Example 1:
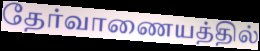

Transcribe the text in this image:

தேர்வாணையத்தில்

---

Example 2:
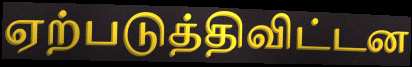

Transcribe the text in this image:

ஏற்படுத்திவிட்டன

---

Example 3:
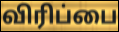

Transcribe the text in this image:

விரிப்பை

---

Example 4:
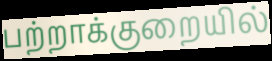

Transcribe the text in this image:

பற்றாக்குறையில்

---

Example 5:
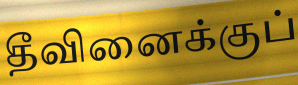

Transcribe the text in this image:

தீவினைக்குப்